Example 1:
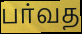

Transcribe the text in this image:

பர்வத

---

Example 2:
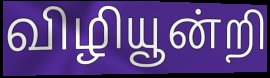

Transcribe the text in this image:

விழியூன்றி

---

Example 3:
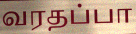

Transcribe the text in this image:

வரதப்பா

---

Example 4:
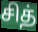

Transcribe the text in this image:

சித்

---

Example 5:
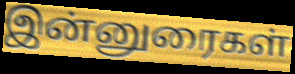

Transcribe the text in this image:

இன்னுரைகள்